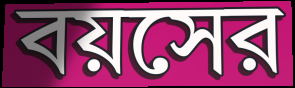
বয়সের